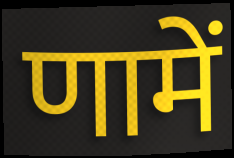
णामें